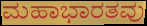
ಮಹಾಭಾರತವು